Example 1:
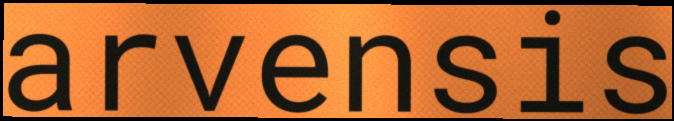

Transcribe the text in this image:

arvensis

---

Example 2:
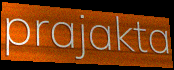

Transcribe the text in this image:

prajakta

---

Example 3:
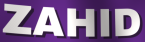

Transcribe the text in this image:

ZAHID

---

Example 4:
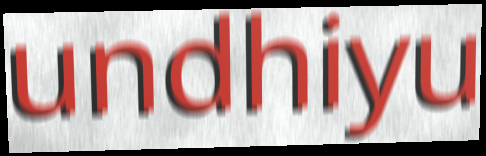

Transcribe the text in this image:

undhiyu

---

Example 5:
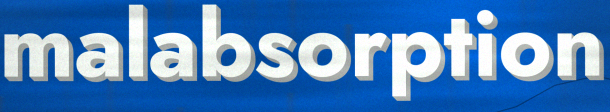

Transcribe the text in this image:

malabsorption